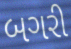
બગરી